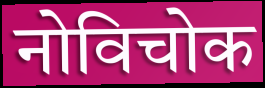
नोविचोक